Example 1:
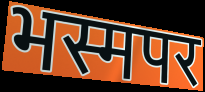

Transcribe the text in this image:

भस्मपर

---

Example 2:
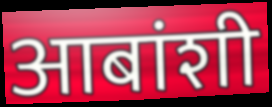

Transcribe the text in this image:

आबांशी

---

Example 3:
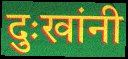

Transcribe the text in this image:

दुःखांनी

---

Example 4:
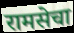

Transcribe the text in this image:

रामसेचा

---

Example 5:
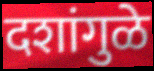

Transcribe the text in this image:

दशांगुळे